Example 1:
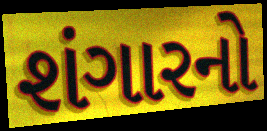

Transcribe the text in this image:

શંગારનો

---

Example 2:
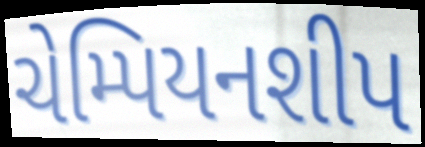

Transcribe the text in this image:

ચેમ્પિયનશીપ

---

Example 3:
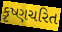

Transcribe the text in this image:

કૃષ્ણચરિત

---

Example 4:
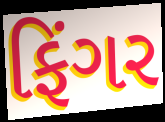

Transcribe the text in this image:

ફિંગર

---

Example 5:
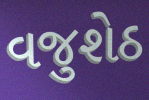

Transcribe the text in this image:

વજુશેઠ